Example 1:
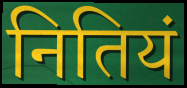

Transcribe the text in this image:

नितियं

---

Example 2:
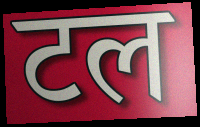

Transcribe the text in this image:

टल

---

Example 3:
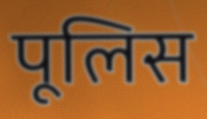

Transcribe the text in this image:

पूलिस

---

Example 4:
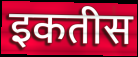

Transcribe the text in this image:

इकतीस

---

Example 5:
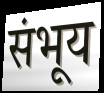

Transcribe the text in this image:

संभूय